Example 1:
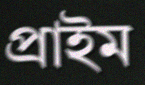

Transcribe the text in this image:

প্রাইম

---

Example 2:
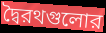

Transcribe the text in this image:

দ্বৈরথগুলোর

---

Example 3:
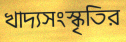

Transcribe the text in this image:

খাদ্যসংস্কৃতির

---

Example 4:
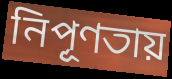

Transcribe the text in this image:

নিপূণতায়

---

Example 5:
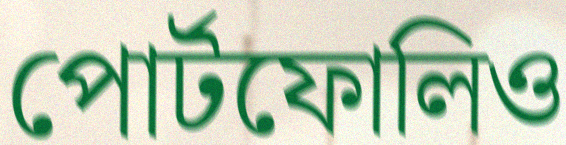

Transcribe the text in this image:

পোর্টফোলিও